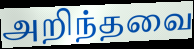
அறிந்தவை